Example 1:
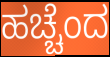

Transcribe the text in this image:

ಹಚ್ಚೆಂದ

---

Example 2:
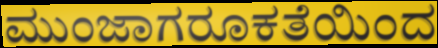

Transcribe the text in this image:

ಮುಂಜಾಗರೂಕತೆಯಿಂದ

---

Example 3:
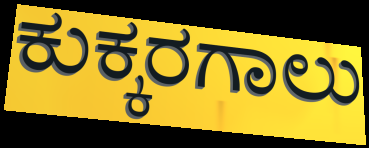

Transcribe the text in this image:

ಕುಕ್ಕರಗಾಲು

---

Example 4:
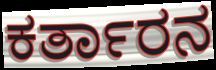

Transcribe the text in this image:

ಕರ್ತಾರನ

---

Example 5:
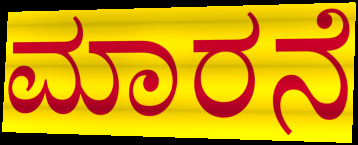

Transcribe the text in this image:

ಮಾರನೆ